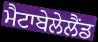
ਮੈਟਾਬੇਲੇਲੈਂਡ